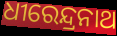
ଧୀରେନ୍ଦ୍ରନାଥ